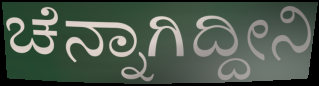
ಚೆನ್ನಾಗಿದ್ದೀನಿ